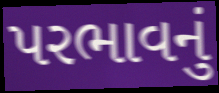
પરભાવનું